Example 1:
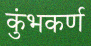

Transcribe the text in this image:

कुंभकर्ण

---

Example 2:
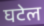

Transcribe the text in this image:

घटेल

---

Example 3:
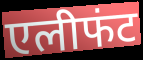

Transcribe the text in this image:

एलीफंट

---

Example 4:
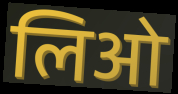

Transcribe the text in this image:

लिओ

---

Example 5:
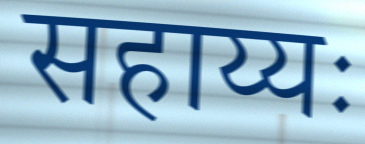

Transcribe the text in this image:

सहाय्यः